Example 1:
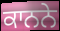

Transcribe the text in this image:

ਕਾਨਨੇ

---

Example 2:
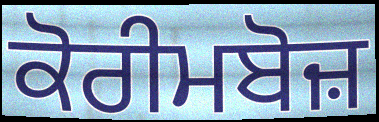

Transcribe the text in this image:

ਕੋਰੀਮਬੋਜ਼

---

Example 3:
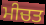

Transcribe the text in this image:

ਮੀਚਤ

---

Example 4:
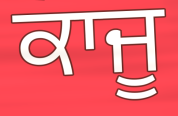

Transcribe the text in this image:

ਕਾਜੂ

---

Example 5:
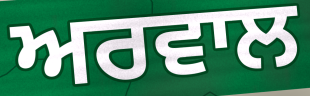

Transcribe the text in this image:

ਅਰਵਾਲ